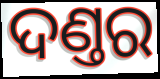
ଦଣ୍ତର